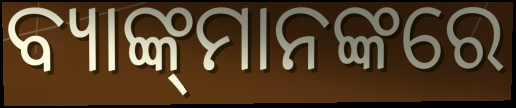
ବ୍ୟାଙ୍କ୍‌ମାନଙ୍କରେ